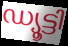
ഡ്യൂട്ടി